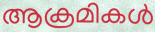
ആക്രമികൾ